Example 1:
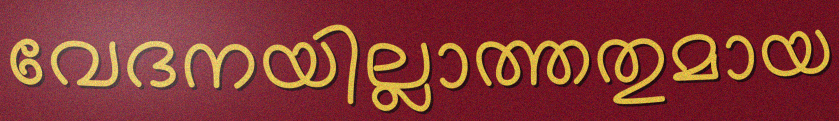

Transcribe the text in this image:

വേദനയില്ലാത്തതുമായ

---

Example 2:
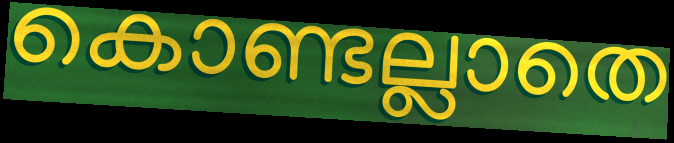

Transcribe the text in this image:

കൊണ്ടല്ലാതെ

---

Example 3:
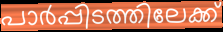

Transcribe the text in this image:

പാർപ്പിടത്തിലേക്ക്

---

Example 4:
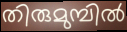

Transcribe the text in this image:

തിരുമുമ്പിൽ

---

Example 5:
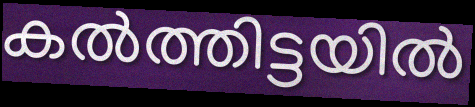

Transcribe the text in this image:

കൽത്തിട്ടയിൽ